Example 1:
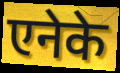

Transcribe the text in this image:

एनेके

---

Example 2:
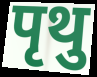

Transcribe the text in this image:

पृथु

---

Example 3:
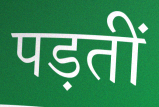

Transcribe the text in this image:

पड़तीं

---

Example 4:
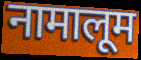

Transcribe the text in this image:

नामालूम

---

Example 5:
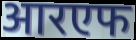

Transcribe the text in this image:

आरएफ